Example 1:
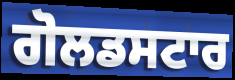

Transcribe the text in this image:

ਗੋਲਡਸਟਾਰ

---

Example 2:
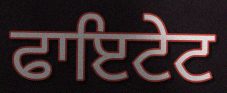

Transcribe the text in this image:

ਫਾਇਟੇਟ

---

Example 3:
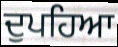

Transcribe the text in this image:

ਦੁਪਹਿਆ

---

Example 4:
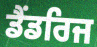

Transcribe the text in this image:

ਡੈਂਡਰਿਜ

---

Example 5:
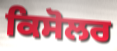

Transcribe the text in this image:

ਕਿਸੋਲਰ